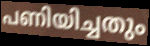
പണിയിച്ചതും